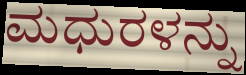
ಮಧುರಳನ್ನು